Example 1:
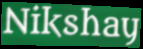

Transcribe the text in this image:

Nikshay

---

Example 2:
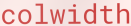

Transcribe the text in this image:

colwidth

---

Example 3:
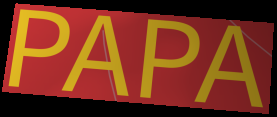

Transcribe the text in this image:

PAPA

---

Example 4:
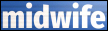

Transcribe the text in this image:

midwife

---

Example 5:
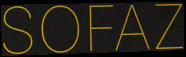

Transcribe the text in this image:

SOFAZ